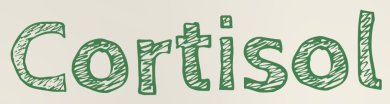
Cortisol